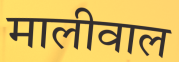
मालीवाल